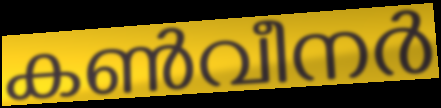
കൺവീനർ